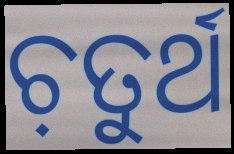
ଚ଼ତୁର୍ଥ